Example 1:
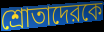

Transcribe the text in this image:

শ্রোতাদেরকে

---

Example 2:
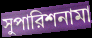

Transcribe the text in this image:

সুপারিশনামা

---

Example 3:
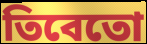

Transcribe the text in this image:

তিবেতো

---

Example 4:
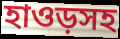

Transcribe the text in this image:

হাওড়সহ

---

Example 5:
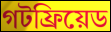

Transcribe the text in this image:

গটফ্রিয়েড